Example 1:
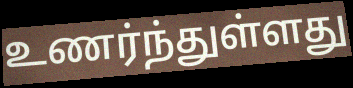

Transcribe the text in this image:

உணர்ந்துள்ளது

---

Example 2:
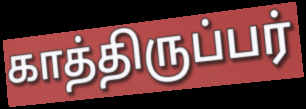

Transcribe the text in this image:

காத்திருப்பர்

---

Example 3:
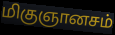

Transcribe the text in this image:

மிகுஞானசம்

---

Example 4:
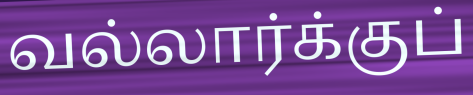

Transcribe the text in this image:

வல்லார்க்குப்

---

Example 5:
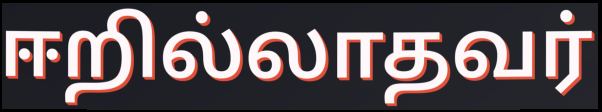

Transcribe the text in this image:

ஈறில்லாதவர்